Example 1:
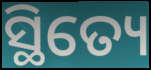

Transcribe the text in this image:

ସ୍ଥିତ୍ୟେ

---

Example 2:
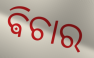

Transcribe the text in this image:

ଵିଚାର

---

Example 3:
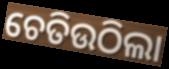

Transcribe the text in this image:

ଚେତିଉଠିଲା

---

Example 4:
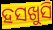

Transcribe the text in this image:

ହସଖୁସି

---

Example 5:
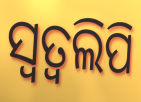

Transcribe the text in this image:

ସ୍ଵତ୍ଵଲିପି